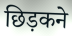
छिड़कने